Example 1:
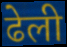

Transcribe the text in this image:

ढेली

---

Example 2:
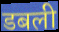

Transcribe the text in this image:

डबली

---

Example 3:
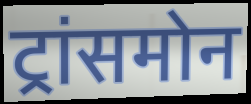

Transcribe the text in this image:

ट्रांसमोन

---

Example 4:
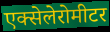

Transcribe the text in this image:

एक्सेलेरोमीटर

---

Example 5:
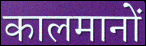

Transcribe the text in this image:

कालमानों